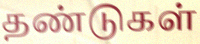
தண்டுகள்